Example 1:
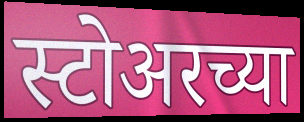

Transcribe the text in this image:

स्टोअरच्या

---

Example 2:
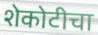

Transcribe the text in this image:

शेकोटीचा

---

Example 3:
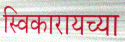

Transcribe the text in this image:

स्विकारायच्या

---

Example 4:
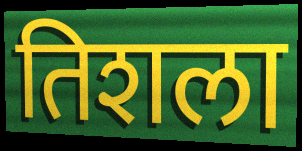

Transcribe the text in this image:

तिशला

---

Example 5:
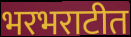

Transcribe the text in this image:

भरभराटीत